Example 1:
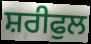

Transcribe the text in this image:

ਸ਼ਰੀਫੁਲ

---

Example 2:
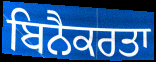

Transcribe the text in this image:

ਬਿਨੈਕਰਤਾ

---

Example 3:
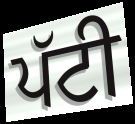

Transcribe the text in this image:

ਪੱਟੀ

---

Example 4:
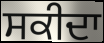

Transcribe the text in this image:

ਸਕੀਦਾ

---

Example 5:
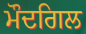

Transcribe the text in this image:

ਮੌਦਗਿਲ